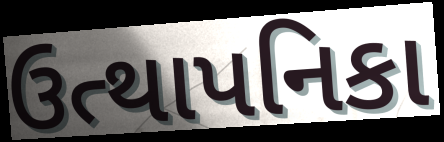
ઉત્થાપનિકા